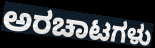
ಅರಚಾಟಗಳು